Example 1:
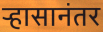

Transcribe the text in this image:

ऱ्हासानंतर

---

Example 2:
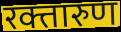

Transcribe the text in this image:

रक्तारुण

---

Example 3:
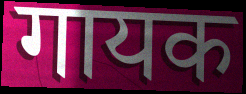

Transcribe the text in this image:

गायक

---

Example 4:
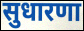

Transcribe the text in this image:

सुधारणा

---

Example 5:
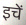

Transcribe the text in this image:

इचें